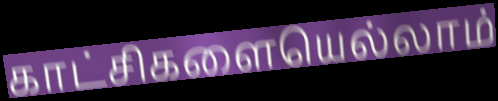
காட்சிகளையெல்லாம்